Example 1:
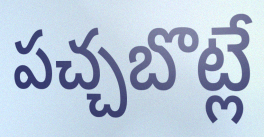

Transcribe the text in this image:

పచ్చబొట్లే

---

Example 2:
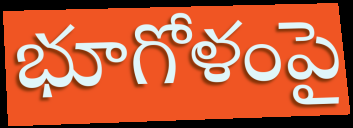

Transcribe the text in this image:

భూగోళంపై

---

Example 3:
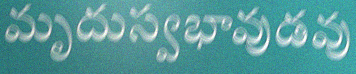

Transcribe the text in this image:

మృదుస్వభావుడవు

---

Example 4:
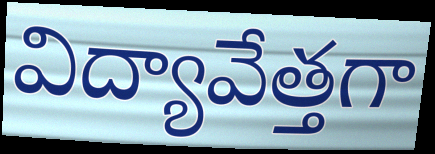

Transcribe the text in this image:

విద్యావేత్తగా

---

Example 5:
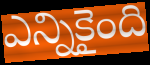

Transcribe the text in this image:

ఎన్నికైంది